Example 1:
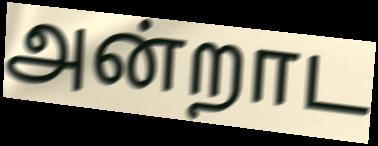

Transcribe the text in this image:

அன்றாட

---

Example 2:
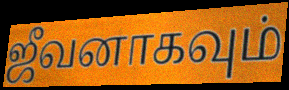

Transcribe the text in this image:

ஜீவனாகவும்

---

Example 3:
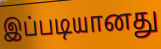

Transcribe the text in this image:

இப்படியானது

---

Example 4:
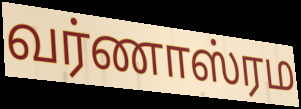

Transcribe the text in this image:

வர்ணாஸ்ரம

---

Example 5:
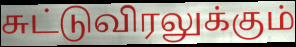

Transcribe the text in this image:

சுட்டுவிரலுக்கும்